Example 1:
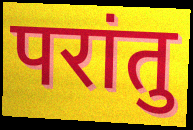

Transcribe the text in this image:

परांतु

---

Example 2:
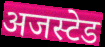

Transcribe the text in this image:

अजस्टेड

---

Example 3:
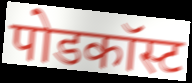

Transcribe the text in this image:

पोडकॉस्ट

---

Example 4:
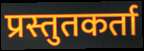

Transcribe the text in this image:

प्रस्तुतकर्ता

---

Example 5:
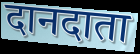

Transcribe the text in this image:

दानदाता